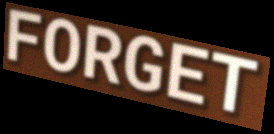
FORGET